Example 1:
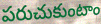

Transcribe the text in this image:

పరుచుకుంటాం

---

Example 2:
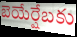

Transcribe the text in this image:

బెయేర్షేబకు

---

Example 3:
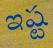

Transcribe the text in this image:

ఇష్ట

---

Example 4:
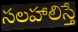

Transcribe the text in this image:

సలహాలిస్తే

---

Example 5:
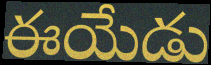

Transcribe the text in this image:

ఈయేడు